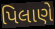
પિલાણે